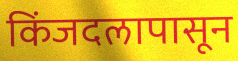
किंजदलापासून